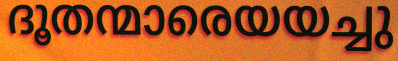
ദൂതന്മാരെയയച്ചു